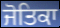
ਜੋਤਿਕਾ